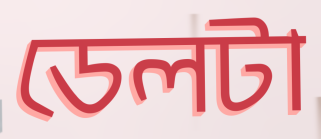
ডেলটা